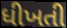
ધીખતી